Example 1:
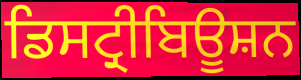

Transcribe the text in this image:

ਡਿਸਟ੍ਰੀਬਿਊਸ਼ਨ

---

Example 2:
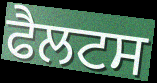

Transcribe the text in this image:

ਫੈਲਟਸ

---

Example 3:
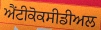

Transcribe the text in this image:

ਐਂਟੀਕੋਕਸੀਡੀਅਲ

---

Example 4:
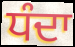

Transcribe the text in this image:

ਧੰਦਾ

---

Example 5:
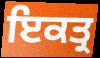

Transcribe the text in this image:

ਇਕਤ੍ਰ